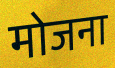
मोजना